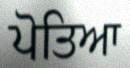
ਪੋਤਿਆ